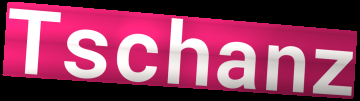
Tschanz